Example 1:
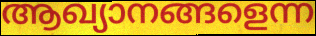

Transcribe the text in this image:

ആഖ്യാനങ്ങളെന്ന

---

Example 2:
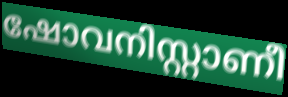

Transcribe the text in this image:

ഷോവനിസ്റ്റാണീ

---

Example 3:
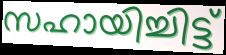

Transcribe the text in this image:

സഹായിച്ചിട്ട്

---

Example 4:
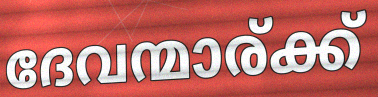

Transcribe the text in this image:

ദേവന്മാര്ക്ക്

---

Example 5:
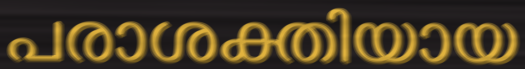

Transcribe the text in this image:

പരാശക്തിയായ